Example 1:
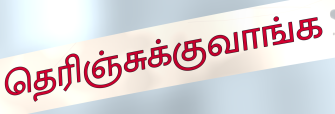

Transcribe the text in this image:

தெரிஞ்சுக்குவாங்க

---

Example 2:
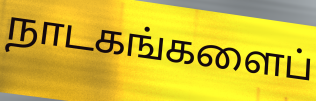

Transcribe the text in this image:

நாடகங்களைப்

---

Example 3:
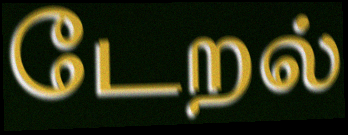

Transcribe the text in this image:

டேறல்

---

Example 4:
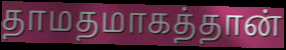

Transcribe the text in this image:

தாமதமாகத்தான்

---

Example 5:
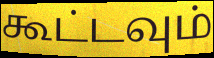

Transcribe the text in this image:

கூட்டவும்